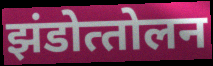
झंडोत्‍तोलन